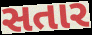
સતાર